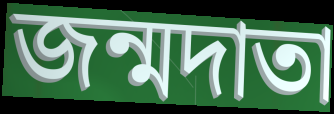
জন্মদাতা